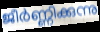
ജീർണ്ണിക്കുന്നു